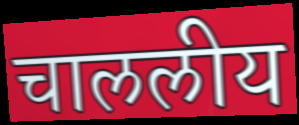
चाललीय